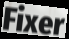
Fixer